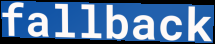
fallback